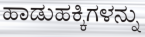
ಹಾಡುಹಕ್ಕಿಗಳನ್ನು